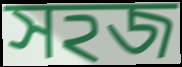
সহজ